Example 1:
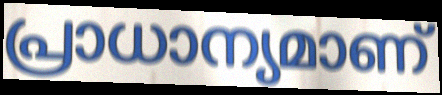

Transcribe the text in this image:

പ്രാധാന്യമാണ്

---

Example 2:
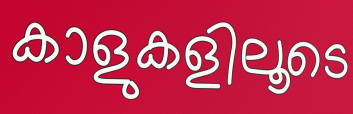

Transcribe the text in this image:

കാളുകളിലൂടെ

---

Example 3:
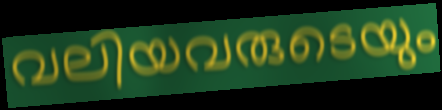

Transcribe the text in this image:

വലിയവരുടെയും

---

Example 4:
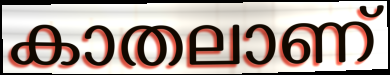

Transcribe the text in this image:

കാതലാണ്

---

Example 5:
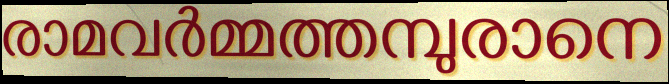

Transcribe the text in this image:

രാമവർമ്മത്തമ്പുരാനെ